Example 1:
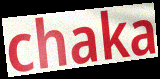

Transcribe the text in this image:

chaka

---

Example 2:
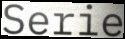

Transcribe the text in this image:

Serie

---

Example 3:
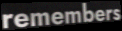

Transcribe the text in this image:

remembers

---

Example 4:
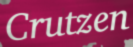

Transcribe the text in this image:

Crutzen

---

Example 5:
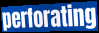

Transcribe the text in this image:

perforating